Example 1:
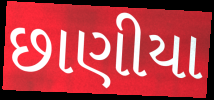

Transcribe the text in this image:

છાણીયા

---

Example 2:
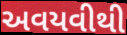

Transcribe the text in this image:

અવયવીથી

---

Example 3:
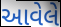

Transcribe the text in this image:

આવેલે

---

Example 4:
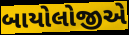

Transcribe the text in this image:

બાયોલોજીએ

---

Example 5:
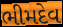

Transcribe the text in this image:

ભીમદેવ